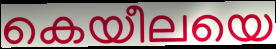
കെയീലയെ